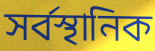
সর্বস্থানিক